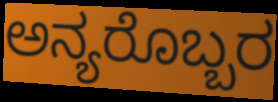
ಅನ್ಯರೊಬ್ಬರ